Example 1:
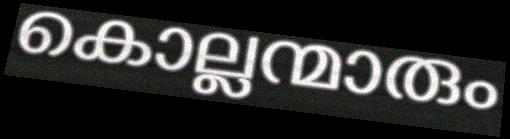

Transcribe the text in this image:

കൊല്ലന്മാരും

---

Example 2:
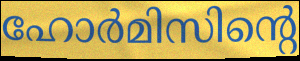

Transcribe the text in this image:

ഹോർമിസിന്റെ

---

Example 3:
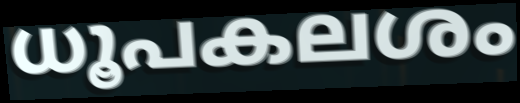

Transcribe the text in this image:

ധൂപകലശം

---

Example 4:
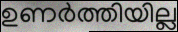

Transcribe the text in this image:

ഉണർത്തിയില്ല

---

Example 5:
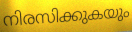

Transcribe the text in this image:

നിരസിക്കുകയും